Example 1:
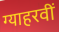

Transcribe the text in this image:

ग्याहरवीं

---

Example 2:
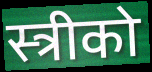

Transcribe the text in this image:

स्त्रीको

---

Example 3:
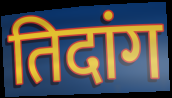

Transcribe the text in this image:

तिदांग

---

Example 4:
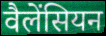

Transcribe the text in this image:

वैलेंसियन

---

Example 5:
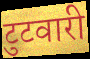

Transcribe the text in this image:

टुटवारी